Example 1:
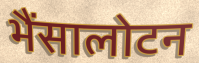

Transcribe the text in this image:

भैंसालोटन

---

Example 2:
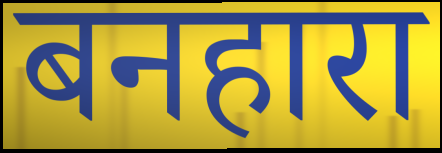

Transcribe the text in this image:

बनहारा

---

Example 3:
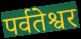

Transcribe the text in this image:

पर्वतेश्वर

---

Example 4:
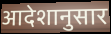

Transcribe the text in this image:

आदेशानुसार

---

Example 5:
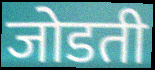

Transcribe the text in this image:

जोडती